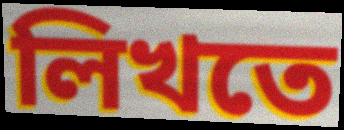
লিখতে